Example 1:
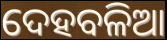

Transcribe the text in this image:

ଦେହବଳିଆ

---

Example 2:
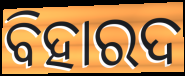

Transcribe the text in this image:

ବିହାରଦ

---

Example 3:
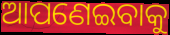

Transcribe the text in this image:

ଆପଣେଇବାକୁ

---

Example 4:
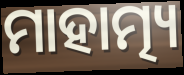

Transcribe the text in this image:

ମାହାତ୍ମ୍ୟ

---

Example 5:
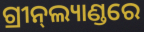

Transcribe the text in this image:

ଗ୍ରୀନ୍‍ଲ୍ୟାଣ୍ଡରେ